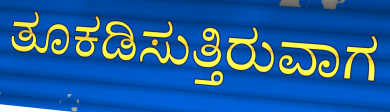
ತೂಕಡಿಸುತ್ತಿರುವಾಗ